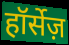
हॉर्सेज़